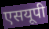
एसयूपी